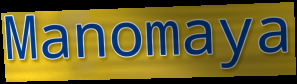
Manomaya